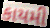
કાયમી